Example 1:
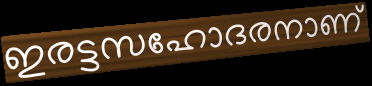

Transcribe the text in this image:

ഇരട്ടസഹോദരനാണ്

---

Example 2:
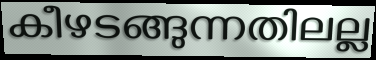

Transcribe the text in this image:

കീഴടങ്ങുന്നതിലല്ല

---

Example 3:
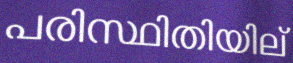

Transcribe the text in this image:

പരിസ്ഥിതിയില്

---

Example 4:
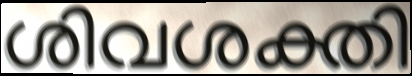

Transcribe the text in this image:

ശിവശക്തി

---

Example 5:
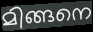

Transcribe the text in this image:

മിങ്ങനെ